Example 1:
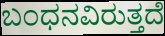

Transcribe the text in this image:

ಬಂಧನವಿರುತ್ತದೆ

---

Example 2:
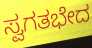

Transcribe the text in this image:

ಸ್ವಗತಭೇದ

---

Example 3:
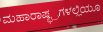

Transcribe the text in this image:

ಮಹಾರಾಷ್ಟ್ರಗಳಲ್ಲಿಯೂ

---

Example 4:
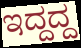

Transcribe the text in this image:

ಇದ್ದದ್ದ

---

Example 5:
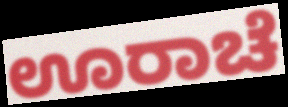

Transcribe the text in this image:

ಊರಾಚೆ